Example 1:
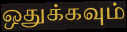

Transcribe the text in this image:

ஒதுக்கவும்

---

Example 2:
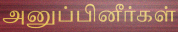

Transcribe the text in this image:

அனுப்பினீர்கள்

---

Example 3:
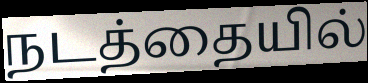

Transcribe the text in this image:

நடத்தையில்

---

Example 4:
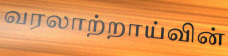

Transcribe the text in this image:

வரலாற்றாய்வின்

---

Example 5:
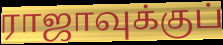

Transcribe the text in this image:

ராஜாவுக்குப்